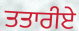
ਤਤਾਰੀਏ